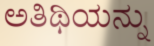
ಅತಿಥಿಯನ್ನು